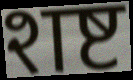
शष्ट